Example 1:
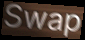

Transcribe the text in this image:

Swap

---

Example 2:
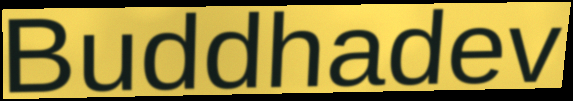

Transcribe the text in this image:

Buddhadev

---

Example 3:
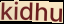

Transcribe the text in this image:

kidhu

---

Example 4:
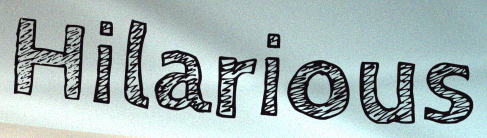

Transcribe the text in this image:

Hilarious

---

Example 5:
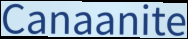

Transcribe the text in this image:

Canaanite